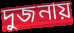
দুজনায়